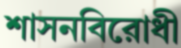
শাসনবিরোধী